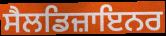
ਸੈਲਡਿਜ਼ਾਇਨਰ